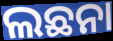
ଲଛନା